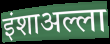
इंशाअल्ला